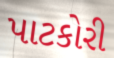
પાટકોરી